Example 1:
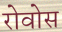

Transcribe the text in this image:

रोवोस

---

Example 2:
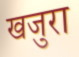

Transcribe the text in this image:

खजुरा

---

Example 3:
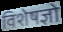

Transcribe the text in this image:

विशेषज्ञो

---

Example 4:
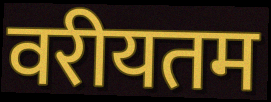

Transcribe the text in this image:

वरीयतम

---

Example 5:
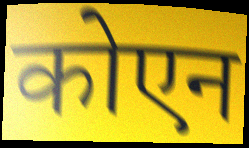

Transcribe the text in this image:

कोएन